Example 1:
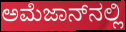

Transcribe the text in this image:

ಅಮೆಜಾನ್‌ನಲ್ಲಿ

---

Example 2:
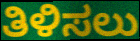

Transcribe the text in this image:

ತಿಳಿಸಲು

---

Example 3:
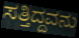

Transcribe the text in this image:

ಸತ್ತಿದ್ದವನು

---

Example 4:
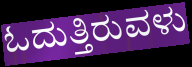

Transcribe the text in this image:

ಓದುತ್ತಿರುವಳು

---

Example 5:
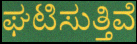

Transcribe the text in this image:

ಘಟಿಸುತ್ತಿವೆ